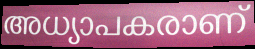
അധ്യാപകരാണ്